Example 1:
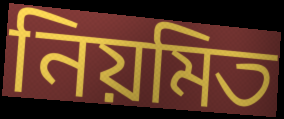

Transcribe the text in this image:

নিয়মিত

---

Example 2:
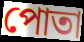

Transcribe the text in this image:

পোতা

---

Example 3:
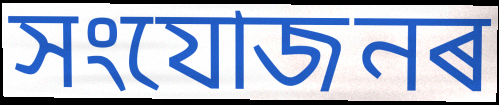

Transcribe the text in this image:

সংযোজনৰ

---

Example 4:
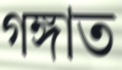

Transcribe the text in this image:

গঙ্গাত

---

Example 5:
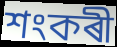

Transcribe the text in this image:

শংকৰী